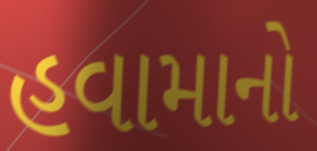
હવામાનો